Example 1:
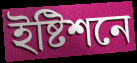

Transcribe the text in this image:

ইষ্টিশনে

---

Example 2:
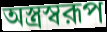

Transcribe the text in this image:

অস্ত্রস্বরূপ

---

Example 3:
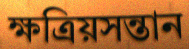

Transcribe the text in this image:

ক্ষত্রিয়সন্তান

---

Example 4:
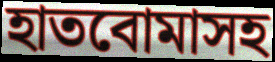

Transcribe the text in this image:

হাতবোমাসহ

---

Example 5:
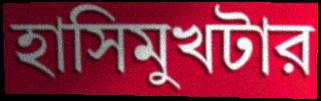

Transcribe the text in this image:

হাসিমুখটার